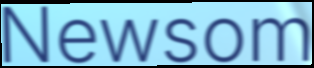
Newsom